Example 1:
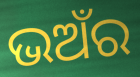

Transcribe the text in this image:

ଭଅଁର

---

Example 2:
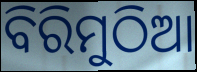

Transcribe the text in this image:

ବିରିମୁଠିଆ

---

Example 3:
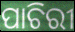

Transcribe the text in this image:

ପାଚିରୀ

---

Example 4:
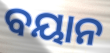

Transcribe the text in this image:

ବୟାନ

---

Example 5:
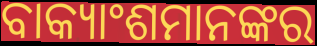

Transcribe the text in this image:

ବାକ୍ୟାଂଶମାନଙ୍କର